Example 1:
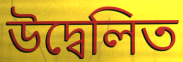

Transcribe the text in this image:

উদ্বেলিত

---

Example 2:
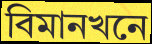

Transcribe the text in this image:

বিমানখনে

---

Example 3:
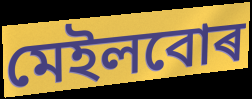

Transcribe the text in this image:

মেইলবোৰ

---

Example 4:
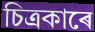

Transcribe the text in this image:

চিত্ৰকাৰে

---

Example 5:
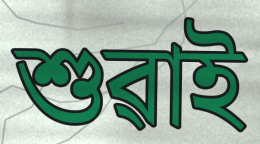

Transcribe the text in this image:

শুৱাই